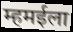
म्हमईला